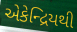
એકેન્દ્રિયથી